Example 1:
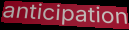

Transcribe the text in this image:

anticipation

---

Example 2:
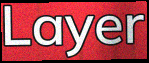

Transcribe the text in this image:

Layer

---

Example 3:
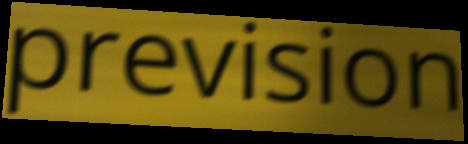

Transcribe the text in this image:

prevision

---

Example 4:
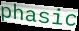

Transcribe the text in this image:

phasic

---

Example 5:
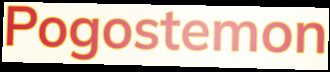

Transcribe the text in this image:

Pogostemon